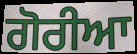
ਗੋਰੀਆ